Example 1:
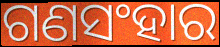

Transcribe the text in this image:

ଗଣସଂହାର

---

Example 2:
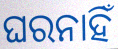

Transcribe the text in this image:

ଘରନାହିଁ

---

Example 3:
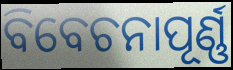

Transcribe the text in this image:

ବିବେଚନାପୂର୍ଣ୍ଣ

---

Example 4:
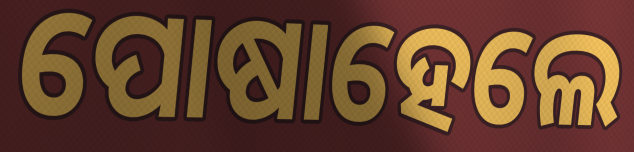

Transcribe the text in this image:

ପୋଷାହେଲେ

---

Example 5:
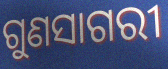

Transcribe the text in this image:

ଗୁଣସାଗରୀ